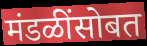
मंडळींसोबत